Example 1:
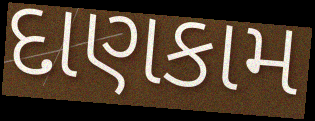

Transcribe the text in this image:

દાણકામ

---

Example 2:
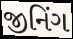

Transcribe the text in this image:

જીનિંગ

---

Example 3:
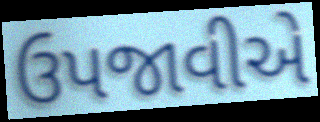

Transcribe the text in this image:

ઉપજાવીએ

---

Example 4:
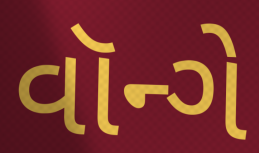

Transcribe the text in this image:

વૉન્ગે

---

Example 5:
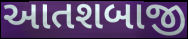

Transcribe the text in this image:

આતશબાજી